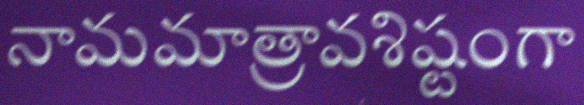
నామమాత్రావశిష్టంగా